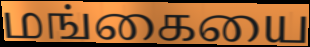
மங்கையை